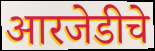
आरजेडीचे